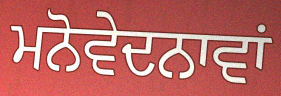
ਮਨੋਵੇਦਨਾਵਾਂ